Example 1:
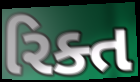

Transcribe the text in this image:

રિક્ત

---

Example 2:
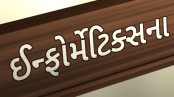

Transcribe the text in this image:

ઈન્ફોર્મેટિક્સના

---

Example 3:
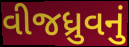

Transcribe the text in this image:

વીજધ્રુવનું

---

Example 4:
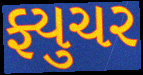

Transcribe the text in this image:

ફ્યુચર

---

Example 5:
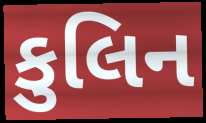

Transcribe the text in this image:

કુલિન